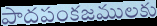
పాదపంకజములకు